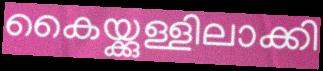
കൈയ്ക്കുള്ളിലാക്കി